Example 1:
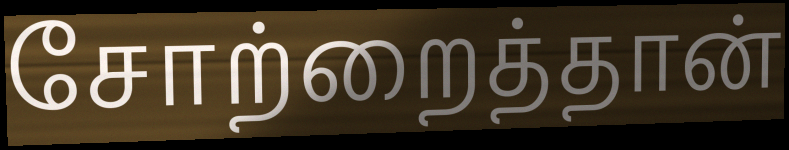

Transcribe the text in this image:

சோற்றைத்தான்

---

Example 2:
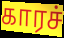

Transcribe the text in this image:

காரச்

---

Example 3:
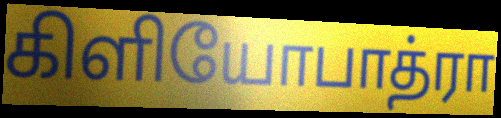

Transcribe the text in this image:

கிளியோபாத்ரா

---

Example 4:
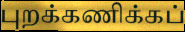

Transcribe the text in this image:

புறக்கணிக்கப்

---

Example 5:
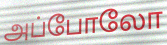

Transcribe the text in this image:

அப்போலோ